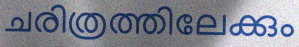
ചരിത്രത്തിലേക്കും